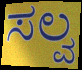
ಸಲ್ವ